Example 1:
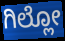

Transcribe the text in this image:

ಗಿಲ್ಲೋ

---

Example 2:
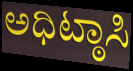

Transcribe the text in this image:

ಅಧಿಟ್ಠಾಸಿ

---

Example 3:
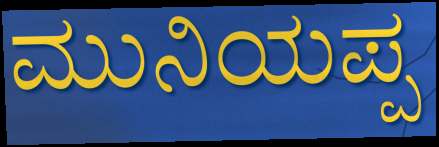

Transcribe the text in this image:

ಮುನಿಯಪ್ಪ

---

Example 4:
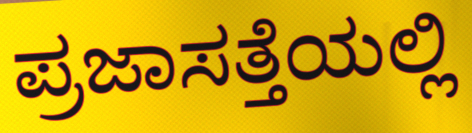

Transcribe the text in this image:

ಪ್ರಜಾಸತ್ತೆಯಲ್ಲಿ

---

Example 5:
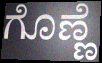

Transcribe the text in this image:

ಗೊಣ್ಣೆ